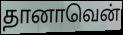
தானாவென்